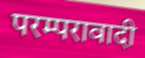
परम्परावादी